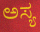
ಅಸ್ಯ